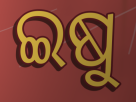
ଇଷୁ